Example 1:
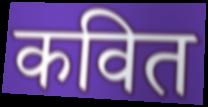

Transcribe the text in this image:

कवित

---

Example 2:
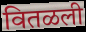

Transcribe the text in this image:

वितळली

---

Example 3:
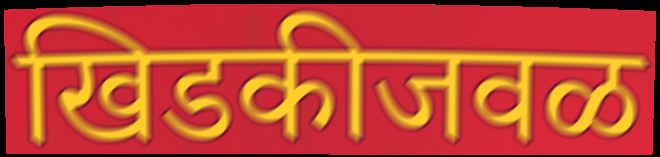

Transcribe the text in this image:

खिडकीजवळ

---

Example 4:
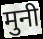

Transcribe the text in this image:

मुनी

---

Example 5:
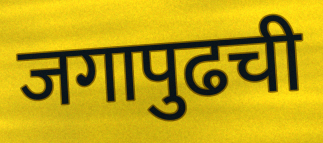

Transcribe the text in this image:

जगापुढची